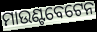
ମାଉଣ୍ଟବେଟେନ